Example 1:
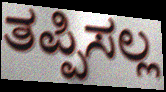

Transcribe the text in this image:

ತಪ್ಪಿಸಲ್ಲ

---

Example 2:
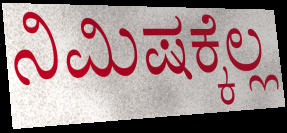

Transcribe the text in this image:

ನಿಮಿಷಕ್ಕೆಲ್ಲ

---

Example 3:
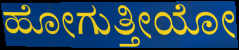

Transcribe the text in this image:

ಹೋಗುತ್ತೀಯೋ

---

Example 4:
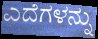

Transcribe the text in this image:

ಎದೆಗಳನ್ನು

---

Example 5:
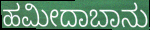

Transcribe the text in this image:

ಹಮೀದಾಬಾನು